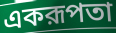
একরূপতা